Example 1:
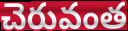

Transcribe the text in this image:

చెరువంత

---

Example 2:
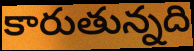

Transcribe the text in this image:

కారుతున్నది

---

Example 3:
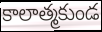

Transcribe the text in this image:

కాలాత్మకుండ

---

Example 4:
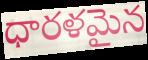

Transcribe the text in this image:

ధారళమైన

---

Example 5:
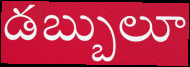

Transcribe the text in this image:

డబ్బులూ